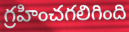
గ్రహించగలిగింది